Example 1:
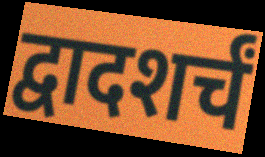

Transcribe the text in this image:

द्वादशर्चं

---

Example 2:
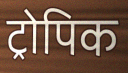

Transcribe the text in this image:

ट्रोपिक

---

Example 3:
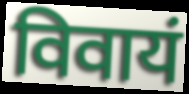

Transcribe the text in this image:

विवायं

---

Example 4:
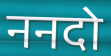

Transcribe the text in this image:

ननदो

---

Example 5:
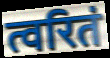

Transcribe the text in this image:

त्वरितं